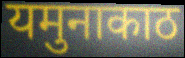
यमुनाकाठ